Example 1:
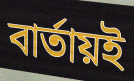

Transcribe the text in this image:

বার্তায়ই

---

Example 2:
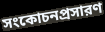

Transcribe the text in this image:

সংকোচনপ্রসারণ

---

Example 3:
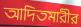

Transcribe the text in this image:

আদিতমারীর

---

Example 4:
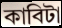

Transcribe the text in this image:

কাবিটা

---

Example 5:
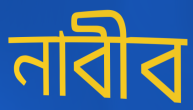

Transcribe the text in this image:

নাবীব